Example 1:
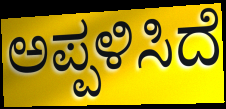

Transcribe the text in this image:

ಅಪ್ಪಳಿಸಿದೆ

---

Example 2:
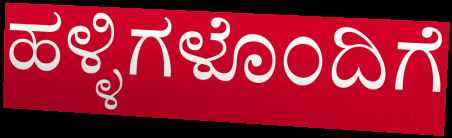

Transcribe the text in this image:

ಹಳ್ಳಿಗಳೊಂದಿಗೆ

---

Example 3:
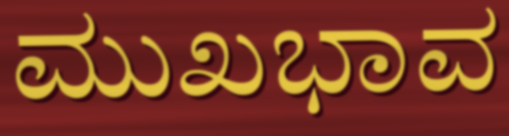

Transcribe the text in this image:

ಮುಖಭಾವ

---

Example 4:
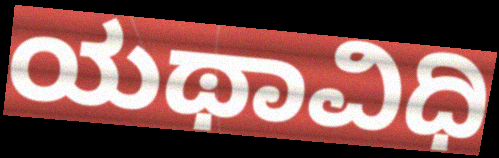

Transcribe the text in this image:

ಯಥಾವಿಧಿ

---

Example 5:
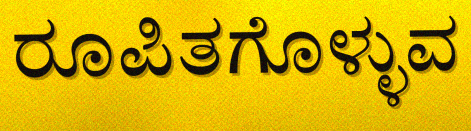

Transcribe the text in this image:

ರೂಪಿತಗೊಳ್ಳುವ